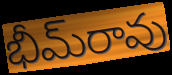
భీమ్‌రావు